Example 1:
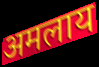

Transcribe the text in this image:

अमलाय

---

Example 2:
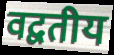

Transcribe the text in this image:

वद्वतीय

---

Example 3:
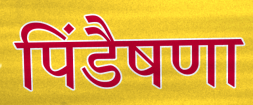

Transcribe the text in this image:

पिंडैषणा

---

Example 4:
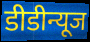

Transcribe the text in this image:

डीडीन्यूज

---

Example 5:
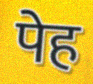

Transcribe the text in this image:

पेह